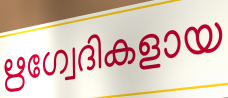
ഋഗ്വേദികളായ